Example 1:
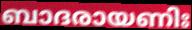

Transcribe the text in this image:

ബാദരായണിഃ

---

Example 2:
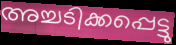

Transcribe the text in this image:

അച്ചടിക്കപ്പെട്ടു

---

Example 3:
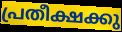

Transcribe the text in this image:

പ്രതീക്ഷക്കു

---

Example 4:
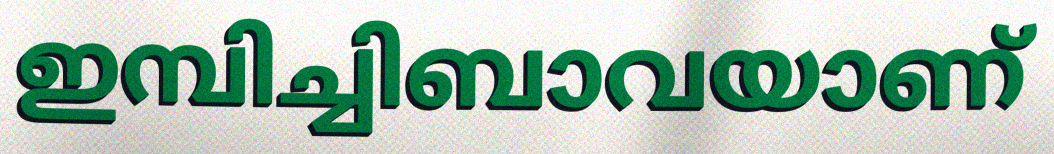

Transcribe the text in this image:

ഇമ്പിച്ചിബാവയാണ്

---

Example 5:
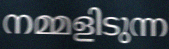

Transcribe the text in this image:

നമ്മളിടുന്ന